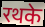
रथके